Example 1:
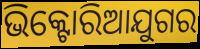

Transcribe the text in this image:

ଭିକ୍ଟୋରିଆଯୁଗର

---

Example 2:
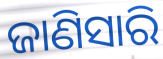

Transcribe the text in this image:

ଜାଣିସାରି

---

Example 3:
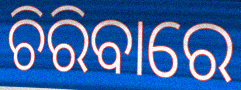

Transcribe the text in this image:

ଚିରିବାରେ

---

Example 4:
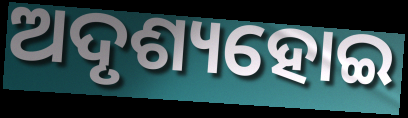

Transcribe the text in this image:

ଅଦୃଶ୍ୟହୋଇ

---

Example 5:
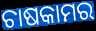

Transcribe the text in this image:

ଚାଷକାମର